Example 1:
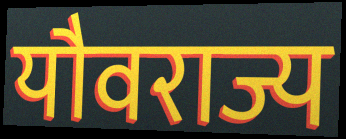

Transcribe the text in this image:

यौवराज्य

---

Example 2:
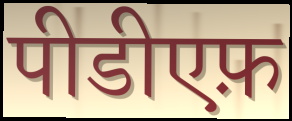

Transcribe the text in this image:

पीडीएफ़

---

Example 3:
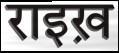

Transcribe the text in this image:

राइख़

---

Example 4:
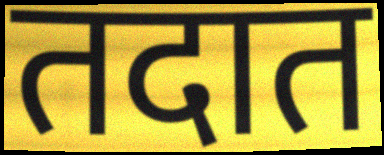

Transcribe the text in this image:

तदात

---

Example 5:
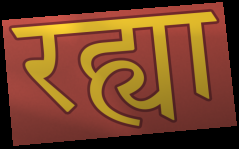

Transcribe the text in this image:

रह्या